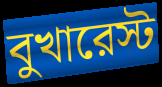
বুখারেস্ট